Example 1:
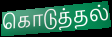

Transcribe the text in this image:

கொடுத்தல்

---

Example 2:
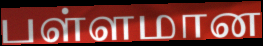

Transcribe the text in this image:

பள்ளமான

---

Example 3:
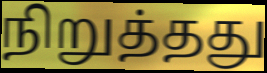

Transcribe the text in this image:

நிறுத்தது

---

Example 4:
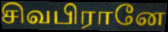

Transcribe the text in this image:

சிவபிரானே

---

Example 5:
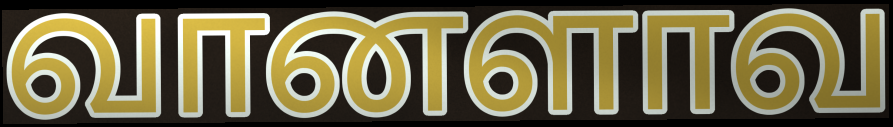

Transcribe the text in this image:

வானளாவ